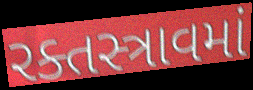
રક્તસ્ત્રાવમાં